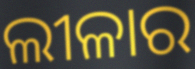
ଲୀଳାର